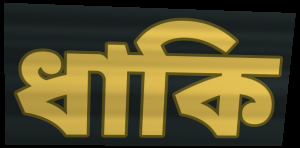
ধাকি